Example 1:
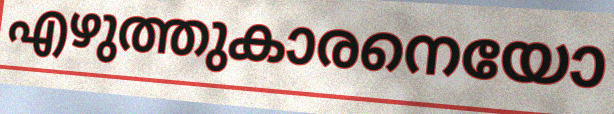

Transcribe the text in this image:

എഴുത്തുകാരനെയോ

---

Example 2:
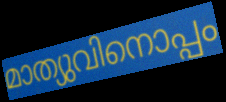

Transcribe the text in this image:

മാത്യുവിനൊപ്പം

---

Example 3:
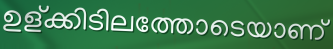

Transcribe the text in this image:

ഉള്ക്കിടിലത്തോടെയാണ്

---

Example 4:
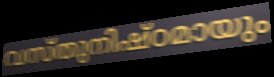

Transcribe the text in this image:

വസ്തുനിഷ്ഠമായും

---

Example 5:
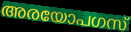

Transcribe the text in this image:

അരയോപഗസ്